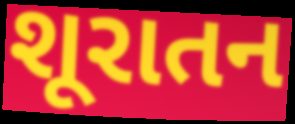
શૂરાતન